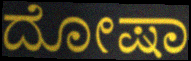
ದೋಷಾ